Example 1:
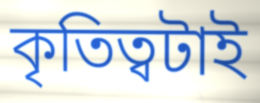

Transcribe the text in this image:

কৃতিত্বটাই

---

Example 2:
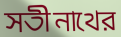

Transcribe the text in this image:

সতীনাথের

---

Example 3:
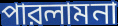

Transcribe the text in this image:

পারলামনা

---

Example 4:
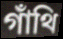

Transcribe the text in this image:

গাঁথি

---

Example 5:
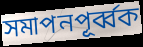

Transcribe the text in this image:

সমাপনপূর্ব্বক